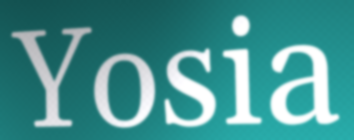
Yosia